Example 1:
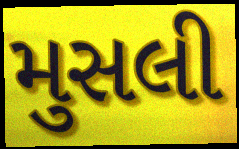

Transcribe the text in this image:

મુસલી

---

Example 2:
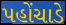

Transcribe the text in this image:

પહોંચાડે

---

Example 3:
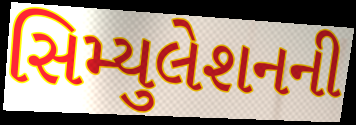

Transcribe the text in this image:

સિમ્યુલેશનની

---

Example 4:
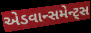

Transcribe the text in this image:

એડવાન્સમેન્ટ્સ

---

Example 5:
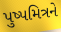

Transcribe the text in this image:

પુષ્પમિત્રને